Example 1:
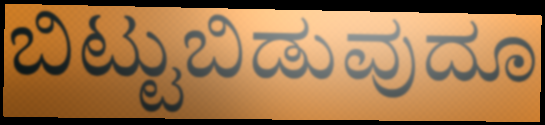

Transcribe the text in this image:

ಬಿಟ್ಟುಬಿಡುವುದೂ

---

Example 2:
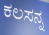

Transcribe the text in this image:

ಕಲಸನ್ನ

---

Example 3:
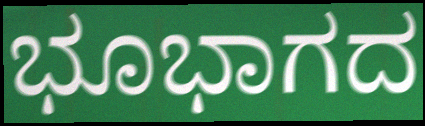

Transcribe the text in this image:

ಭೂಭಾಗದ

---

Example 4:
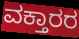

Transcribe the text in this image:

ವಕ್ತಾರರ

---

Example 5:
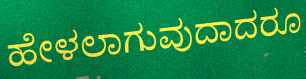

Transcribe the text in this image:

ಹೇಳಲಾಗುವುದಾದರೂ